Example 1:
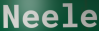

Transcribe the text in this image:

Neele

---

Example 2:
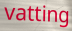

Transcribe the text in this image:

vatting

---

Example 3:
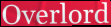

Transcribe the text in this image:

Overlord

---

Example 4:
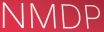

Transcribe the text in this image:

NMDP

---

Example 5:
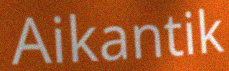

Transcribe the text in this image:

Aikantik